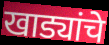
खाड्यांचे